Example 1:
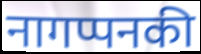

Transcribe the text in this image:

नागप्पनकी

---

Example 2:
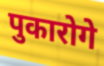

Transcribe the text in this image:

पुकारोगे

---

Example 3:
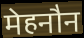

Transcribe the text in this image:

मेहनौन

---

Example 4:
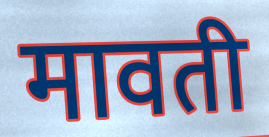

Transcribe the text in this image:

मावती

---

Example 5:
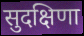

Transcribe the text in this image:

सुदक्षिणा